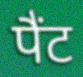
पैंट